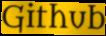
Github